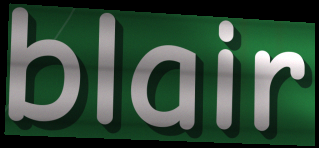
blair